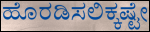
ಹೊರಡಿಸಲಿಕ್ಕಷ್ಟೇ